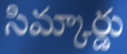
సిమ్కార్డు